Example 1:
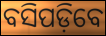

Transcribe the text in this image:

ବସିପଡ଼ିବେ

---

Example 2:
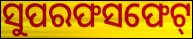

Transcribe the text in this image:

ସୁପରଫସଫେଟ୍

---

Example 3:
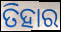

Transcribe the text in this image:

ତିହାର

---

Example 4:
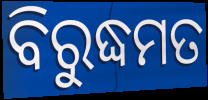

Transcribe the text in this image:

ବିରୁଦ୍ଧମତ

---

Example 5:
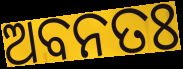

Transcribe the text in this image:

ଅବନତଃ